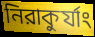
নিরাকুর্যাং